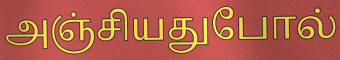
அஞ்சியதுபோல்